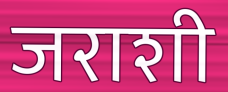
जराशी